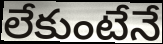
లేకుంటేనే